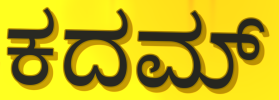
ಕದಮ್